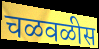
चळवळीस